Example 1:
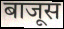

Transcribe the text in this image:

बाजूस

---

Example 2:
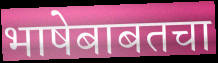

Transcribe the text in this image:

भाषेबाबतचा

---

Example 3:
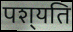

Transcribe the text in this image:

पश्यति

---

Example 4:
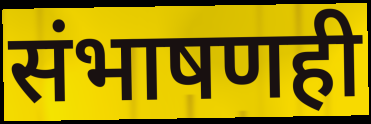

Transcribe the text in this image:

संभाषणही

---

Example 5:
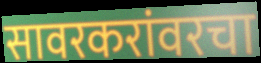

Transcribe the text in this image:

सावरकरांवरचा